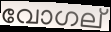
വോഗല്